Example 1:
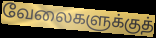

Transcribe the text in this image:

வேலைகளுக்குத்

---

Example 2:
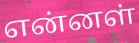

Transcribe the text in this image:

என்னள்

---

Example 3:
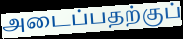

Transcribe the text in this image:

அடைப்பதற்குப்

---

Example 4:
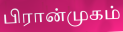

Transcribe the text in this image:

பிரான்முகம்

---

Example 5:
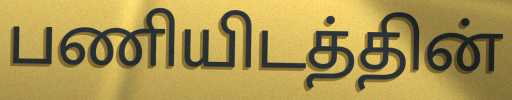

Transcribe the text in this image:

பணியிடத்தின்